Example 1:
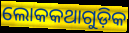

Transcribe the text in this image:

ଲୋକକଥାଗୁଡ଼ିକ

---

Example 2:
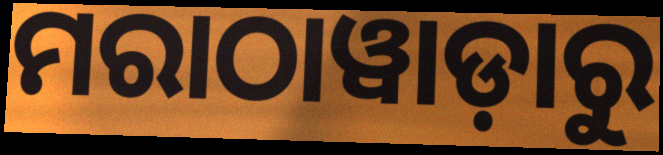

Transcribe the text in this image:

ମରାଠାୱାଡ଼ାରୁ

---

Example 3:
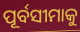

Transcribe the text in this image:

ପୂର୍ବସୀମାକୁ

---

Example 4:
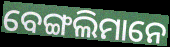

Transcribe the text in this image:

ବେଙ୍ଗଲିମାନେ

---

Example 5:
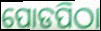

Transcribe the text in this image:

ପୋଡପିଠା